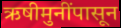
ऋषीमुनींपासून